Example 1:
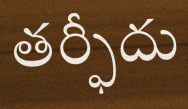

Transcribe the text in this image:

తర్ఫీదు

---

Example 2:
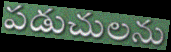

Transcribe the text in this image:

పడుచులను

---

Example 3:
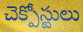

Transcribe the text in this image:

చెక్పోస్టులు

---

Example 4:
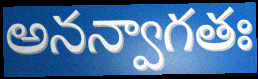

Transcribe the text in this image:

అనన్వాగతః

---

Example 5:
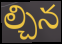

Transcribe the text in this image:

ల్చిన